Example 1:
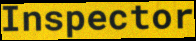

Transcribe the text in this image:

Inspector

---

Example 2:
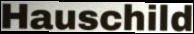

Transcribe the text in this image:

Hauschild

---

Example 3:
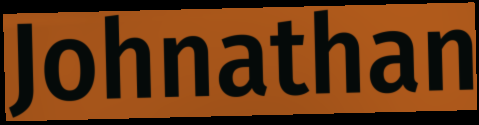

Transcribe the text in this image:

Johnathan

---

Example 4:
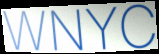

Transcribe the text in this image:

WNYC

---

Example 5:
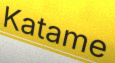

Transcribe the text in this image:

Katame